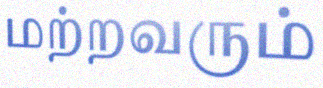
மற்றவரும்